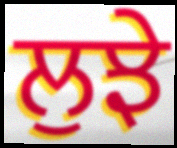
ਲੁਝੇ